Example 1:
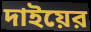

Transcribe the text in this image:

দাইয়ের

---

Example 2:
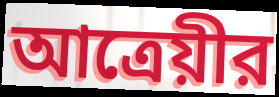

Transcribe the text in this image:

আত্রেয়ীর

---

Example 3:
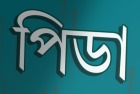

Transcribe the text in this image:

পিডা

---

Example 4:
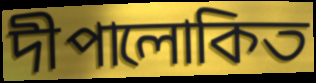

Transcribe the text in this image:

দীপালোকিত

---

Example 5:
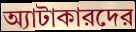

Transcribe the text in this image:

অ্যাটাকারদের